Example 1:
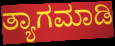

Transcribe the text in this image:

ತ್ಯಾಗಮಾಡಿ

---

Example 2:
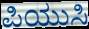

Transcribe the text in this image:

ಪಿಯುಸಿ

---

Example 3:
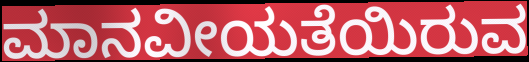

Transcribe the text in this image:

ಮಾನವೀಯತೆಯಿರುವ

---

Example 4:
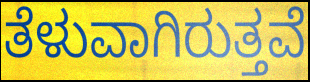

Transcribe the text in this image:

ತೆಳುವಾಗಿರುತ್ತವೆ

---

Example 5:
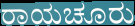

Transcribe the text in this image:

ರಾಯಚೂರು